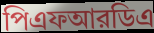
পিএফআরডিএ